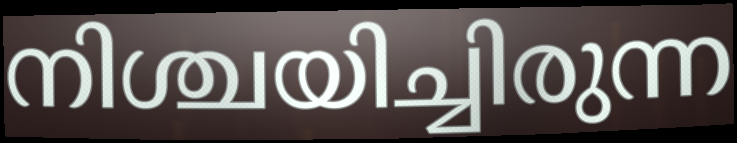
നിശ്ചയിച്ചിരുന്ന